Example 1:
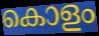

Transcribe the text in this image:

കൊളം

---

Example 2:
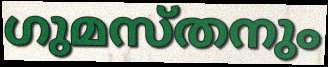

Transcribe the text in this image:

ഗുമസ്തനും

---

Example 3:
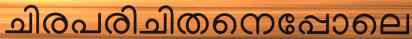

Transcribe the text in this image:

ചിരപരിചിതനെപ്പോലെ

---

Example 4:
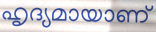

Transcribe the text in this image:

ഹൃദ്യമായാണ്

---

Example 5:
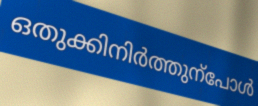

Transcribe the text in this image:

ഒതുക്കിനിർത്തുന്പോൾ